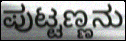
ಪುಟ್ಟಣ್ಣನು